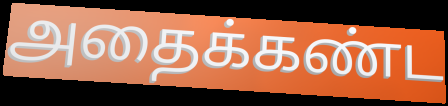
அதைக்கண்ட